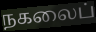
நகலைப்